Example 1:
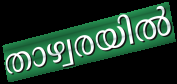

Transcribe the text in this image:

താഴ്വരയിൽ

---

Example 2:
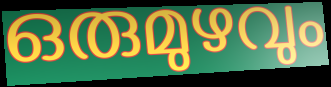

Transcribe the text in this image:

ഒരുമുഴവും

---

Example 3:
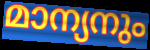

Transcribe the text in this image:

മാന്യനും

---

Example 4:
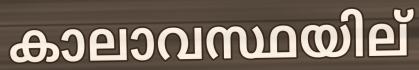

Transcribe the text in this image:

കാലാവസ്ഥയില്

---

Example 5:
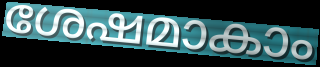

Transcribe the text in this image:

ശേഷമാകാം